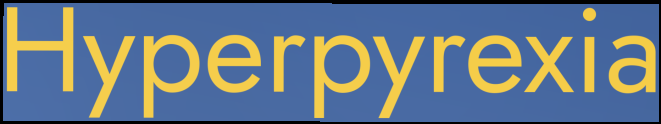
Hyperpyrexia